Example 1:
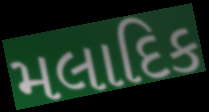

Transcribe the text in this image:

મલાદિક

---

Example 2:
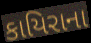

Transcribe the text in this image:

કાયિરાના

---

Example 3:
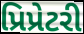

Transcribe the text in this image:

પ્રિપ્રેટરી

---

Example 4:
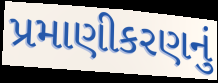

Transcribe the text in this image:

પ્રમાણીકરણનું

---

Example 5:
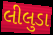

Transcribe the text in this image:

લીલુડા